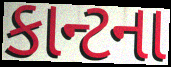
કાન્ટના